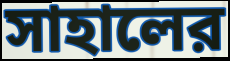
সাহালের